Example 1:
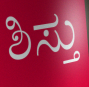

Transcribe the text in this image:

ಶಿಸ್ತು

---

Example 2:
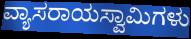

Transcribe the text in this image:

ವ್ಯಾಸರಾಯಸ್ವಾಮಿಗಳು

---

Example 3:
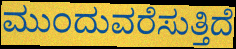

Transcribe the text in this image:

ಮುಂದುವರೆಸುತ್ತಿದೆ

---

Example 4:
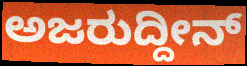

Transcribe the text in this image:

ಅಜರುದ್ದೀನ್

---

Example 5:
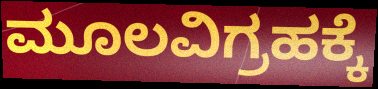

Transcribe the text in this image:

ಮೂಲವಿಗ್ರಹಕ್ಕೆ